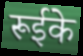
रूईके